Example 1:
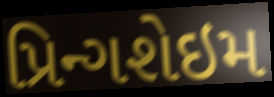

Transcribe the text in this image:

પ્રિન્ગશેઇમ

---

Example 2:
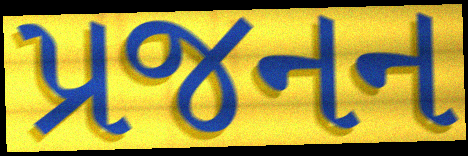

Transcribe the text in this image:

પ્રજનન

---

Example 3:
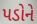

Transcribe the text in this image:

પડોને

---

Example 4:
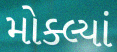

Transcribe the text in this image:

મોક્લ્યાં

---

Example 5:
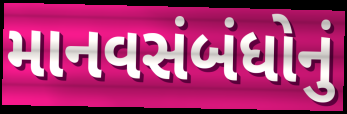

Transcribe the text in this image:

માનવસંબંધોનું